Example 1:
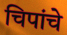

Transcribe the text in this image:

चिपांचे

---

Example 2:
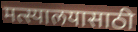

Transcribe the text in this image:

मत्स्यालयासाठी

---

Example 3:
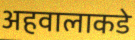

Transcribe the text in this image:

अहवालाकडे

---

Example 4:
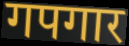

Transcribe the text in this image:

गपगार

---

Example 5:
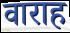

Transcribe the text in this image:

वाराह